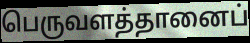
பெருவளத்தானைப்